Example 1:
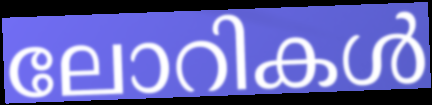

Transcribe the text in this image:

ലോറികൾ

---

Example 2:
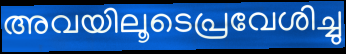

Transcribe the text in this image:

അവയിലൂടെപ്രവേശിച്ചു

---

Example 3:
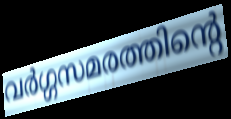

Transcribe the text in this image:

വർഗ്ഗസമരത്തിന്റെ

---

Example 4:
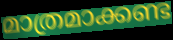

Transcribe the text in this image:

മാത്രമാക്കണ്ട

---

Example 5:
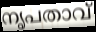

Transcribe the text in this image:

നൃപതാവ്